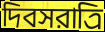
দিবসরাত্রি